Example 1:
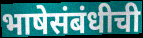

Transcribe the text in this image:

भाषेसंबंधीची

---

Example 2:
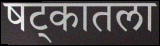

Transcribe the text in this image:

षट्कातला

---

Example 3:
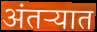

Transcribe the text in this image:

अंतऱ्यात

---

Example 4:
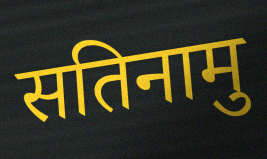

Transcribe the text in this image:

सतिनामु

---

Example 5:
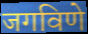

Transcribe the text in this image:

जगविणे